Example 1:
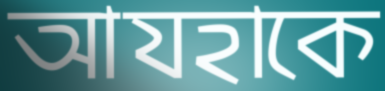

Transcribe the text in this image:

আযহাকে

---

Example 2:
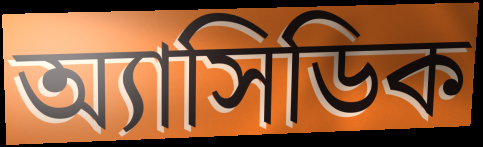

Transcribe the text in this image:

অ্যাসিডিক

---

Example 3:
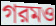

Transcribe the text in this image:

গরমও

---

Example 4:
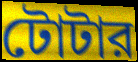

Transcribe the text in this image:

টোটার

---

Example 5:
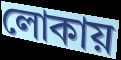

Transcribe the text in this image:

লোকায়